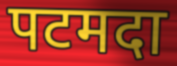
पटमदा